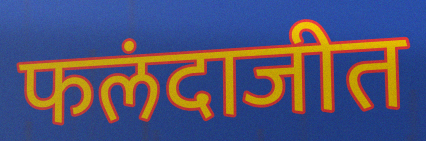
फलंदाजीत